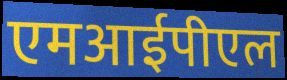
एमआईपीएल